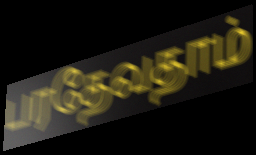
பரதேவதாம்